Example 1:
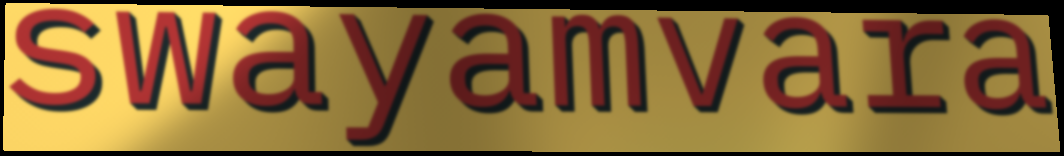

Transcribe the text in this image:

swayamvara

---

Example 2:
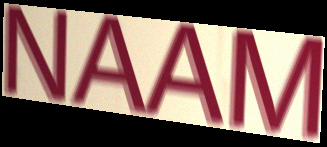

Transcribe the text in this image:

NAAM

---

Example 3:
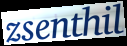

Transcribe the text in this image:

zsenthil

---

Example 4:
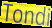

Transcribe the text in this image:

Tondi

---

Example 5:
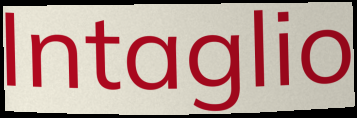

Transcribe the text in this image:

Intaglio